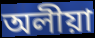
অলীয়া